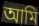
আমি